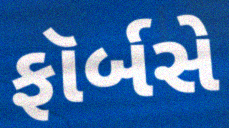
ફૉર્બસે